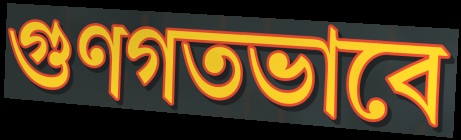
গুণগতভাবে